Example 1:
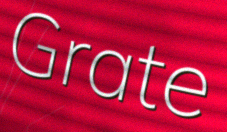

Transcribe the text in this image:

Grate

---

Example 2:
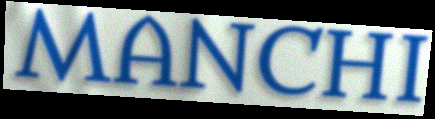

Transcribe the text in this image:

MANCHI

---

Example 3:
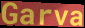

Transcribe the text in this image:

Garva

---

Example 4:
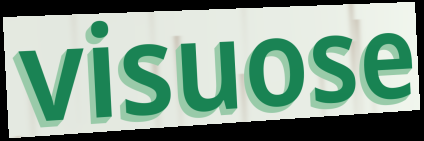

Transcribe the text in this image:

visuose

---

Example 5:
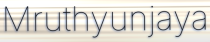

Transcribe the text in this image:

Mruthyunjaya